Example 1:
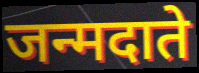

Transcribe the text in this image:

जन्मदाते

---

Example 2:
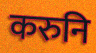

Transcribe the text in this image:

करुनि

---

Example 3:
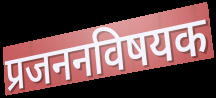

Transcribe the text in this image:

प्रजननविषयक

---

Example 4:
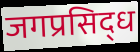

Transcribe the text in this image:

जगप्रसिद्ध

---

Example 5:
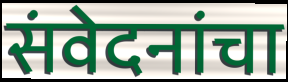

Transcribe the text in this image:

संवेदनांचा